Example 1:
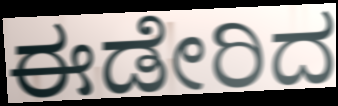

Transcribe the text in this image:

ಈಡೇರಿದ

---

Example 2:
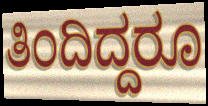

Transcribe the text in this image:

ತಿಂದಿದ್ದರೂ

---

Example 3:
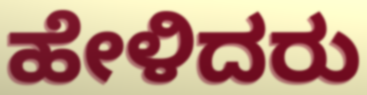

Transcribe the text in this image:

ಹೇಳಿದರು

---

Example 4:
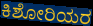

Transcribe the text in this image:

ಕಿಶೋರಿಯರ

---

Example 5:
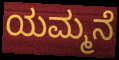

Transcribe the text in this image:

ಯಮ್ಮನೆ